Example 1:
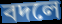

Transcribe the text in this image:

বদলে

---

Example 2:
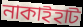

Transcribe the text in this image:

নাকাইহাট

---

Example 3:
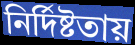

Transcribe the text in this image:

নির্দিষ্টতায়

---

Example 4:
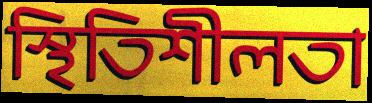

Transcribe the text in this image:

স্থিতিশীলতা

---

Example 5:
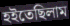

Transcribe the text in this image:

হইতেছিলাম